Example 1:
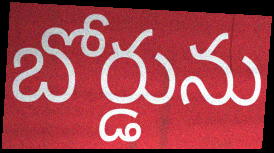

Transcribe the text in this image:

బోర్డును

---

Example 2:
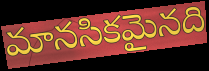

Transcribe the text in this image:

మానసికమైనది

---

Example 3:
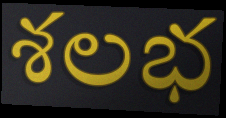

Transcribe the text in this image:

శలభ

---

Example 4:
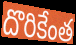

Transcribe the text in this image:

దొరికేంత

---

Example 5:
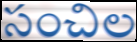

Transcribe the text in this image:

సంచిల